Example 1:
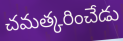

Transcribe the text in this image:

చమత్కరించేడు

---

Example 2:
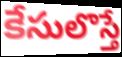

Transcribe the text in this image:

కేసులొస్తే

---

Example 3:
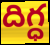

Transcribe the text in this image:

దిగ్ధ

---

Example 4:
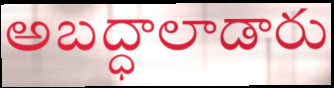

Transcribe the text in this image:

అబద్ధాలాడారు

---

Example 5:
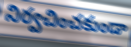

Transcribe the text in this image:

నిర్వచించకుండా